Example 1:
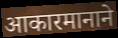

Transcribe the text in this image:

आकारमानाने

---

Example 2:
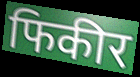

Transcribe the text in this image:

फिकीर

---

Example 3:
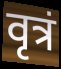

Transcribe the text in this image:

वृत्रं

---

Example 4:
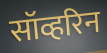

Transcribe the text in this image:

सॉव्हरिन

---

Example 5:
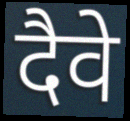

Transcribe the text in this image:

दैवे